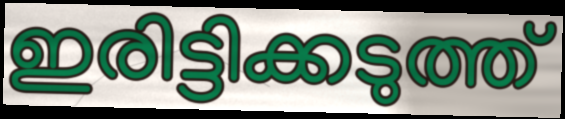
ഇരിട്ടിക്കടുത്ത്